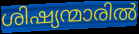
ശിഷ്യന്മാരിൽ